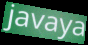
javaya